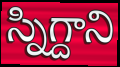
స్నిగ్దాని